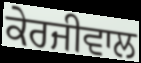
ਕੇਰਜੀਵਾਲ